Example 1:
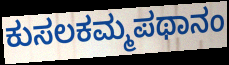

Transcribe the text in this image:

ಕುಸಲಕಮ್ಮಪಥಾನಂ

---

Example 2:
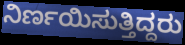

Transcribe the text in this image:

ನಿರ್ಣಯಿಸುತ್ತಿದ್ದರು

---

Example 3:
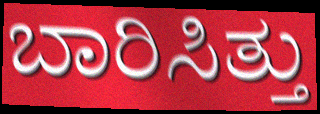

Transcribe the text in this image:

ಬಾರಿಸಿತ್ತು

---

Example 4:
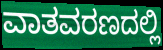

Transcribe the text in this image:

ವಾತವರಣದಲ್ಲಿ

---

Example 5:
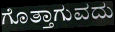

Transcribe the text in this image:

ಗೊತ್ತಾಗುವದು